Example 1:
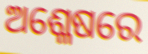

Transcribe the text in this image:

ଅଶ୍ଳେଷରେ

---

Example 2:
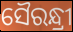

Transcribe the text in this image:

ସୈରନ୍ଧ୍ରୀ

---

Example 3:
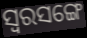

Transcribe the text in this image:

ସ୍ୱରସଙ୍ଗେ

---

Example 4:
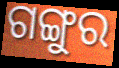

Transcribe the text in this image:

ଗଙ୍ଗୁର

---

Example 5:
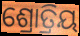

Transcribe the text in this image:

ଶ୍ରୋତ୍ରିୟ